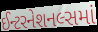
ઈન્ટરનેશનલ્સમાં